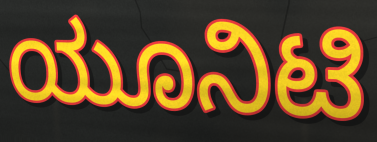
ಯೂನಿಟಿ